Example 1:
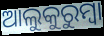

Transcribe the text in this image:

ଆଲୁକୁରୁମ୍ବା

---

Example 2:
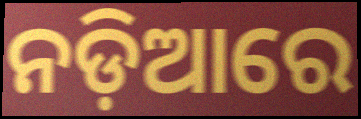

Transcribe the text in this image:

ନଡ଼ିଆରେ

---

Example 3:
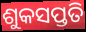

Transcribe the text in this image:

ଶୁକସପ୍ତତି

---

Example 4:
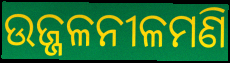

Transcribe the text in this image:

ଉଜ୍ଜଳନୀଳମଣି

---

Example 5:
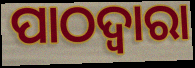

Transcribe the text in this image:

ପାଠଦ୍ଵାରା